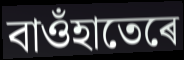
বাওঁহাতেৰে